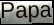
Papa